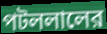
পটললালের